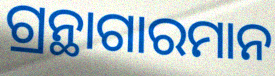
ଗ୍ରନ୍ଥାଗାରମାନ